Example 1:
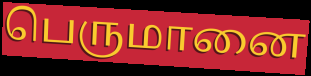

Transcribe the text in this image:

பெருமானை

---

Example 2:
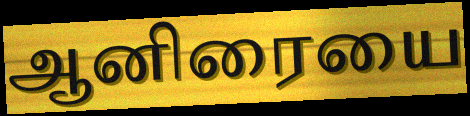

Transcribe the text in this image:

ஆனிரையை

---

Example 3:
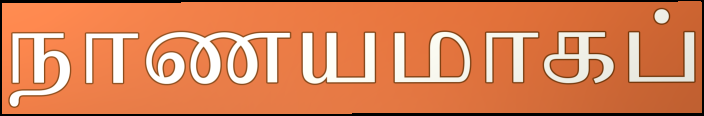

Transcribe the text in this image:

நாணயமாகப்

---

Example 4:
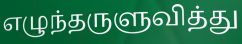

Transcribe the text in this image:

எழுந்தருளுவித்து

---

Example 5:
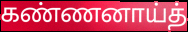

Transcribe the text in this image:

கண்ணனாய்த்